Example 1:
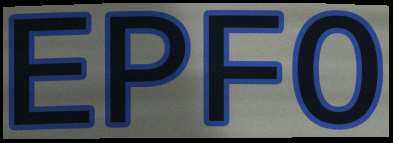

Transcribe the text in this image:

EPFO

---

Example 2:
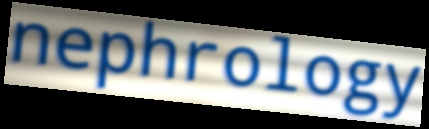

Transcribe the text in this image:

nephrology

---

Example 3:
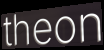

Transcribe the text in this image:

theon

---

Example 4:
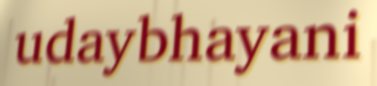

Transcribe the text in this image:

udaybhayani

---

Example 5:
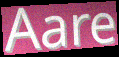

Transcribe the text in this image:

Aare